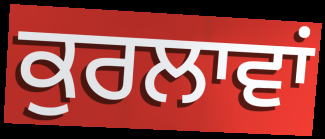
ਕੁਰਲਾਵਾਂ